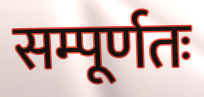
सम्पूर्णतः